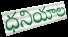
ధనియాల